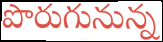
పొరుగునున్న